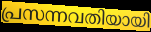
പ്രസന്നവതിയായി